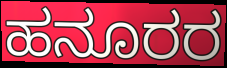
ಹನೂರರ